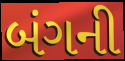
બંગની